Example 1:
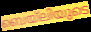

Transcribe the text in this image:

ബെയ്ലിയുടെ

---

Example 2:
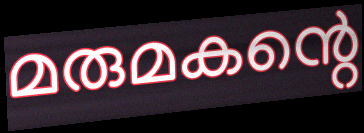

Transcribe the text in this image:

മരുമകന്റെ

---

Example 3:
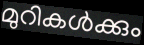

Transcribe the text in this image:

മുറികൾക്കും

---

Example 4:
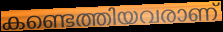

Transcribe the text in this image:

കണ്ടെത്തിയവരാണ്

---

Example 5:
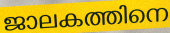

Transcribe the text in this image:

ജാലകത്തിനെ